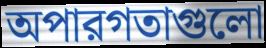
অপারগতাগুলো